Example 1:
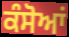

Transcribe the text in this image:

ਕੰਸੋਆਂ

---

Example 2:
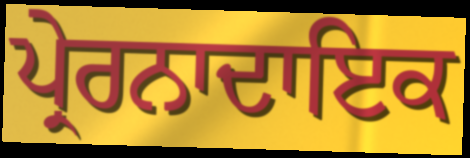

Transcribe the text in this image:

ਪ੍ਰੇਰਨਾਦਾਇਕ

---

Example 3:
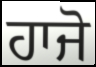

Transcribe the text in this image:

ਹਾਜੋ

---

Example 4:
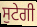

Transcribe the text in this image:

ਸੁਟੇਗੀ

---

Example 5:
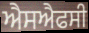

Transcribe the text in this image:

ਐਸਐਫਸੀ